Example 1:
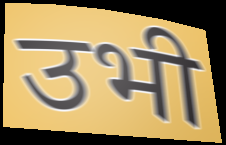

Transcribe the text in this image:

उभी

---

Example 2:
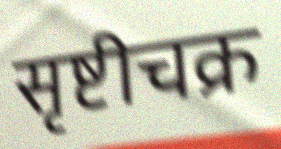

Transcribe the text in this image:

सृष्टीचक्र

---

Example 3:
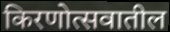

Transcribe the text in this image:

किरणोत्सवातील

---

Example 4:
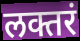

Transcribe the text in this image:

लक्तरं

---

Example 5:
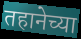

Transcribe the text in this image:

तहानेच्या